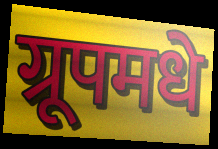
ग्रूपमधे